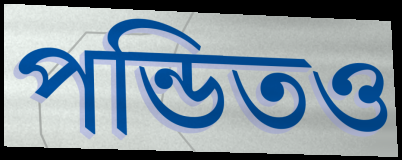
পন্ডিতও